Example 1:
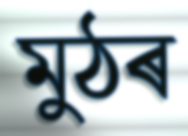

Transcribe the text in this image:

মুঠৰ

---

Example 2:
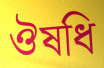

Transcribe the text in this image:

ঔষধি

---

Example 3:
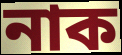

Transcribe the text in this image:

নাক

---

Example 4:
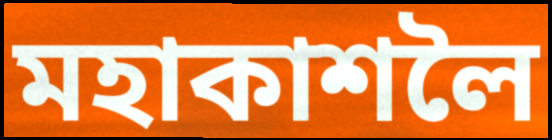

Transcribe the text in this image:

মহাকাশলৈ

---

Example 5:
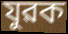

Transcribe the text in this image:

যুৱক